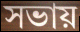
সভায়